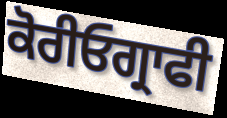
ਕੋਰੀਓਗ੍ਰਾਫੀ